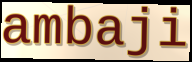
ambaji